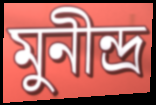
মুনীন্দ্ৰ